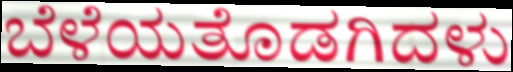
ಬೆಳೆಯತೊಡಗಿದಳು